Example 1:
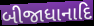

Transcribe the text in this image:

બીજાધાનાદિ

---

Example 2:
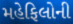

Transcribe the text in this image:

મહેફિલોની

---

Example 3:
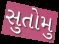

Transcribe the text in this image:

સુતોમુ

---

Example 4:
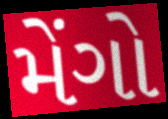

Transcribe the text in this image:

મેંગો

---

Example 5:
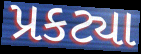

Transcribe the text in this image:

પ્રકટ્યા